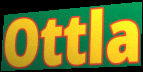
Ottla